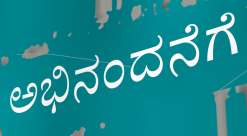
ಅಭಿನಂದನೆಗೆ